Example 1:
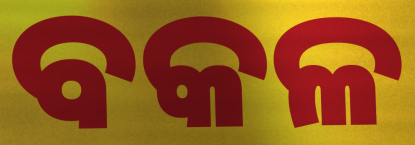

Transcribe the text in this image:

ବକଳ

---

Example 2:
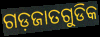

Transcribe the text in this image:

ଗଡ଼ଜାତଗୁଡିକ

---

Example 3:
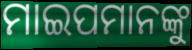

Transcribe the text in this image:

ମାଇପମାନଙ୍କୁ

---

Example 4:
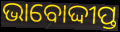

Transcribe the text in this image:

ଭାବୋଦ୍ଦୀପ୍ତ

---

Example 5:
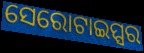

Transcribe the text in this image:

ସେରୋଟାଇପ୍ସର